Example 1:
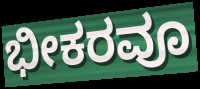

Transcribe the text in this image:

ಭೀಕರವೂ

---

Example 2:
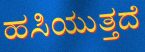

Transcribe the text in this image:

ಹಸಿಯುತ್ತದೆ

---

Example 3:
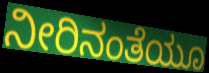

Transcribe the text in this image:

ನೀರಿನಂತೆಯೂ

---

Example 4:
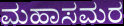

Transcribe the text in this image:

ಮಹಾಸಮರ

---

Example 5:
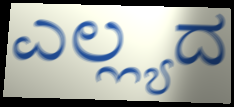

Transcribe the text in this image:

ಎಲ್ಲ್ಯದ